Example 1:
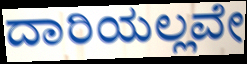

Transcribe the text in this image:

ದಾರಿಯಲ್ಲವೇ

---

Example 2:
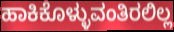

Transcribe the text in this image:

ಹಾಕಿಕೊಳ್ಳುವಂತಿರಲಿಲ್ಲ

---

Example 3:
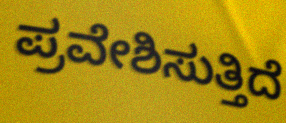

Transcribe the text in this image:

ಪ್ರವೇಶಿಸುತ್ತಿದೆ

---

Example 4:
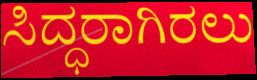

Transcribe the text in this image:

ಸಿದ್ಧರಾಗಿರಲು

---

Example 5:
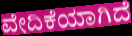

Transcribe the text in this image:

ವೇದಿಕೆಯಾಗಿದೆ